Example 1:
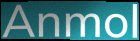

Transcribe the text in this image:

Anmol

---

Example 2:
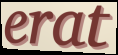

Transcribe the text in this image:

erat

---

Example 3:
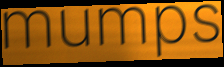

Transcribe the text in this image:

mumps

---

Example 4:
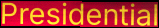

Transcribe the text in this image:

Presidential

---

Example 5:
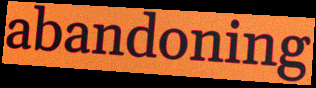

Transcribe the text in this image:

abandoning